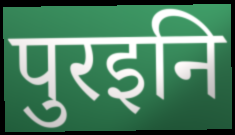
पुरइनि